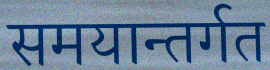
समयान्तर्गत